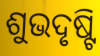
ଶୁଭଦୃଷ୍ଟି